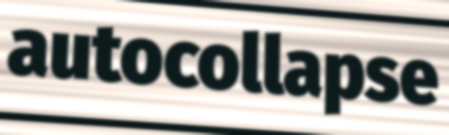
autocollapse